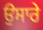
ਉਸਾਰੇ